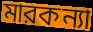
মারকন্যা